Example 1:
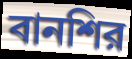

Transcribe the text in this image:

বানশির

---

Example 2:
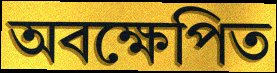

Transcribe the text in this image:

অবক্ষেপিত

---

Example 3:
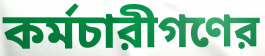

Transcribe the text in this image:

কর্মচারীগণের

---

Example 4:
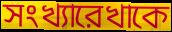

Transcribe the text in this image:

সংখ্যারেখাকে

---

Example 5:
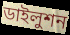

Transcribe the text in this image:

ডাইলুশন